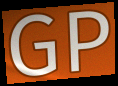
GP